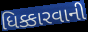
ધિક્કારવાની